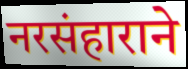
नरसंहाराने